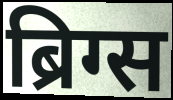
ब्रिग्स